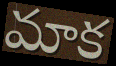
మాక